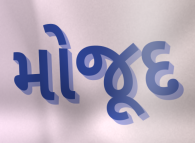
મોજૂદ